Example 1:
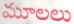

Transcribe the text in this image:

మూలలు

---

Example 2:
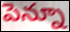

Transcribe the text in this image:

పెన్నూ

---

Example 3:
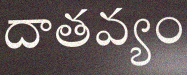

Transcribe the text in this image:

దాతవ్యం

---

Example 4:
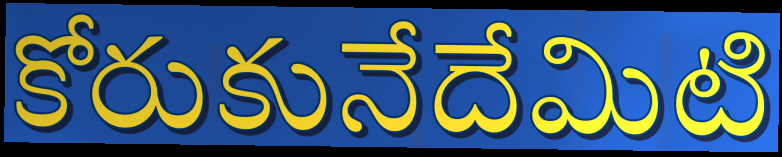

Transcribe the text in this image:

కోరుకునేదేమిటి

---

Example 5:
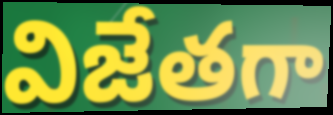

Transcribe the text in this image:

విజేతగా